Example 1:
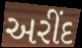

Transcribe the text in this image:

અરીંદ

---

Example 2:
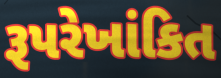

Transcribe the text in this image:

રૂપરેખાંકિત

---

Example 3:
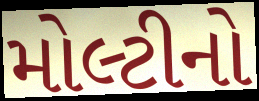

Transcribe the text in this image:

મોલ્ટીનો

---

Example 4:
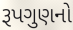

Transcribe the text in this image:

રૂપગુણનો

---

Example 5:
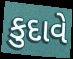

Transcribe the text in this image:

કુદાવે